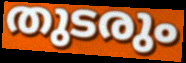
തുടരും